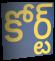
కోర్ట్